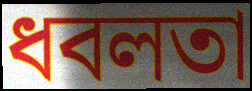
ধবলতা